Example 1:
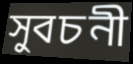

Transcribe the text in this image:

সুবচনী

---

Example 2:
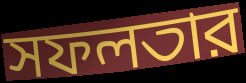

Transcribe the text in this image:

সফলতার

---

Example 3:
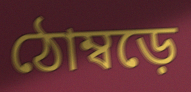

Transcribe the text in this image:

ঠোম্বড়ে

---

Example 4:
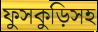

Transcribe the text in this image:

ফুসকুড়িসহ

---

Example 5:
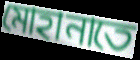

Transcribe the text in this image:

মোহানাতে